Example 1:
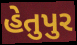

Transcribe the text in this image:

હેતુપુર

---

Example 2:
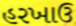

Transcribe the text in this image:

હરખાઉ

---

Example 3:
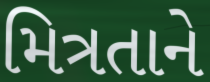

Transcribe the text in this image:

મિત્રતાને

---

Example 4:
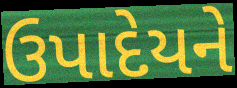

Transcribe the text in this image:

ઉપાદેયને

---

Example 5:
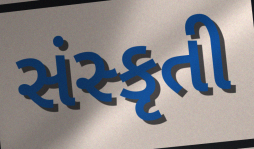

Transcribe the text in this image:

સંસ્કૃતી